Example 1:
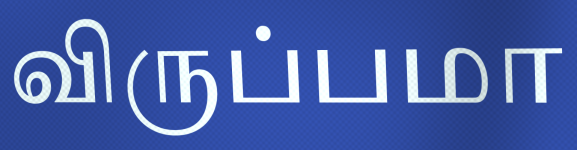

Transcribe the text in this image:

விருப்பமா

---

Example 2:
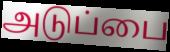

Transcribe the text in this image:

அடுப்பை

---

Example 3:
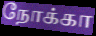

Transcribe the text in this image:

நோக்கா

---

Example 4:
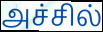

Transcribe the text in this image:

அச்சில்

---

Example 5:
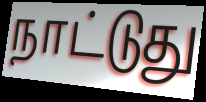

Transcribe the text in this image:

நாட்டுது